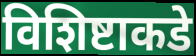
विशिष्टाकडे